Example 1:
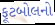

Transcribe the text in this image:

ફૂટબોલનો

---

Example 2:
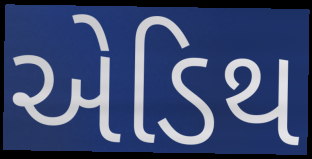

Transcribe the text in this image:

એડિથ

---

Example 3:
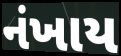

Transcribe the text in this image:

નંખાય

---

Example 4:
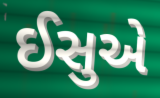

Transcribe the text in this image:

ઈસુએ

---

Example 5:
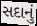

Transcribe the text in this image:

સદાનું